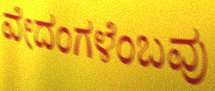
ವೇದಂಗಳೆಂಬವು